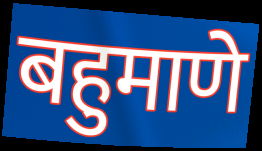
बहुमाणे